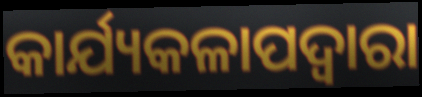
କାର୍ଯ୍ୟକଳାପଦ୍ୱାରା